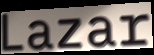
Lazar